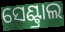
ସେଣ୍ଟ୍ରାଲ